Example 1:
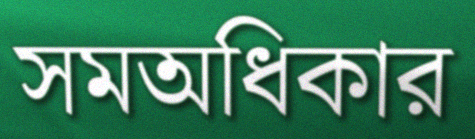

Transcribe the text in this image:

সমঅধিকার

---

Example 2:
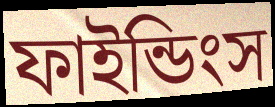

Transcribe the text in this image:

ফাইন্ডিংস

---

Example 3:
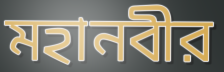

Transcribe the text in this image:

মহানবীর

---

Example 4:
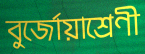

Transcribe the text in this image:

বুর্জোয়াশ্রেণী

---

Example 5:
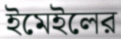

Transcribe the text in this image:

ইমেইলের